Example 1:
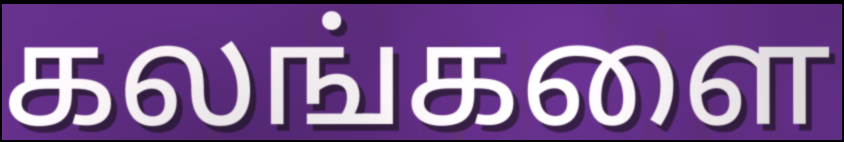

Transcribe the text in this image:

கலங்களை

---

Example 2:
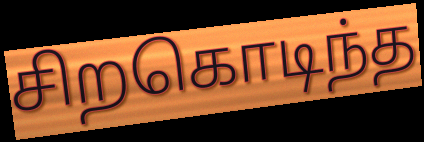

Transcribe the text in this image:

சிறகொடிந்த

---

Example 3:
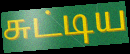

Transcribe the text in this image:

சுட்டிய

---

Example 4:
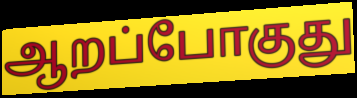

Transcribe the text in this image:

ஆறப்போகுது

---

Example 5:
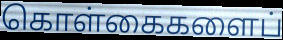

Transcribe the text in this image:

கொள்கைகளைப்